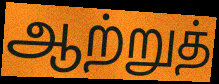
ஆற்றுத்